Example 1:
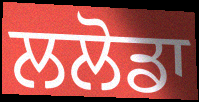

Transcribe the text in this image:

ਲਲੋਡਾ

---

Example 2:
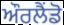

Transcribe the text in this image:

ਔਰਲੈਂਡੋ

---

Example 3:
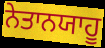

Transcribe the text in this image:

ਨੇਤਾਨਯਾਹੂ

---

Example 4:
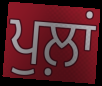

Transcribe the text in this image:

ਪੁਲ਼ਾਂ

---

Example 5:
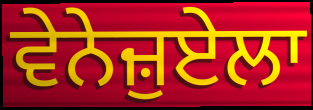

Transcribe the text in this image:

ਵੇਨੇਜ਼ੁਏਲਾ